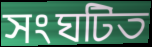
সংঘটিত